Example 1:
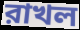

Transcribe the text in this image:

রাখল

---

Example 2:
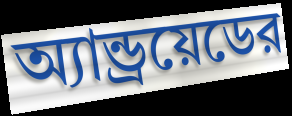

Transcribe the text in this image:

অ্যান্ড্রয়েডের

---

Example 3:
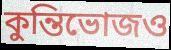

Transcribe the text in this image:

কুন্তিভোজও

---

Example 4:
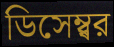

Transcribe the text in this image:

ডিসেম্ব্বর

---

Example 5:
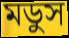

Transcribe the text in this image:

মডুস